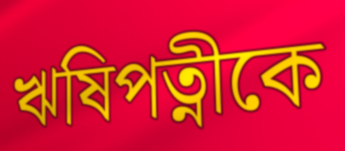
ঋষিপত্নীকে